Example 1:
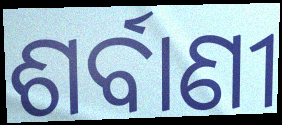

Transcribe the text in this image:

ଶର୍ବାଣୀ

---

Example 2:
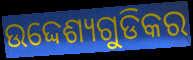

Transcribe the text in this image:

ଉଦ୍ଦେଶ୍ୟଗୁଡିକର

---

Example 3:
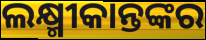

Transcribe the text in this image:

ଲକ୍ଷ୍ମୀକାନ୍ତଙ୍କର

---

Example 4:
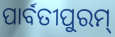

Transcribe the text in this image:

ପାର୍ବତୀପୁରମ୍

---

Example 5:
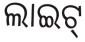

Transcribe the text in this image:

ଲାଇଟ୍